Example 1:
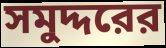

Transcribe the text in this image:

সমুদ্দরের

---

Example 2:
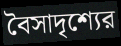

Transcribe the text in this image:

বৈসাদৃশ্যের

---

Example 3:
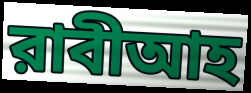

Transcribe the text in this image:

রাবীআহ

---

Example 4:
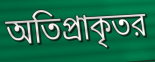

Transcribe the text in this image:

অতিপ্রাকৃতর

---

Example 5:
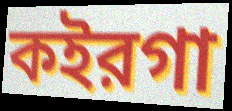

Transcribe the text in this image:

কইরগা